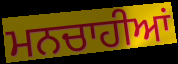
ਮਨਚਾਹੀਆਂ